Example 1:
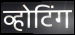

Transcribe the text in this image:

व्होटिंग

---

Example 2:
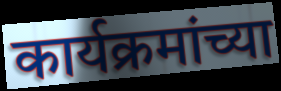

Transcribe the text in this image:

कार्यक्रमांच्या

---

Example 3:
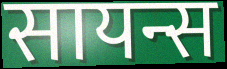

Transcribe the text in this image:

सायन्स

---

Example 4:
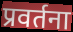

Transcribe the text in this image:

प्रवर्तना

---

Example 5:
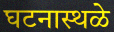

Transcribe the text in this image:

घटनास्थळे